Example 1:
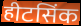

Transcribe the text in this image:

हीटसिंक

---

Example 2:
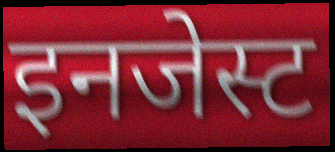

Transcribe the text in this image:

इनजेस्ट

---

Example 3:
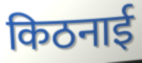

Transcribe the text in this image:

किठनाई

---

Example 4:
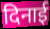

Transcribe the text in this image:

दिनाई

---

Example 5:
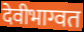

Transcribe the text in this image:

देवीभाग्वत